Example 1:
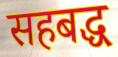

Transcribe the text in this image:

सहबद्ध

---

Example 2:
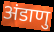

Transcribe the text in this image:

अंडाणु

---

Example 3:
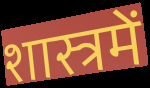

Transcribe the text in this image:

शास्त्रमें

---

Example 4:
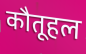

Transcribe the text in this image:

कौतूहल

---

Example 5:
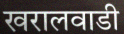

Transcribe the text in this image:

खरालवाडी